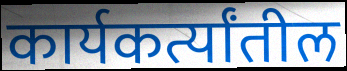
कार्यकर्त्यांतील